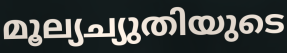
മൂല്യച്യുതിയുടെ